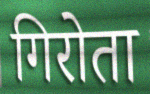
गिरोता